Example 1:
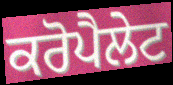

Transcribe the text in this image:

ਕਰੋਪੈਲੇਟ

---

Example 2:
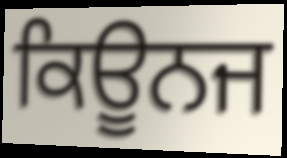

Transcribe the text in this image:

ਕਿਊਨਜ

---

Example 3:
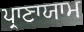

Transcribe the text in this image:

ਪ੍ਰਾਣਾਯਾਮ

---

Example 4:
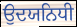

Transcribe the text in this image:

ਉਦਯਨਿਧੀ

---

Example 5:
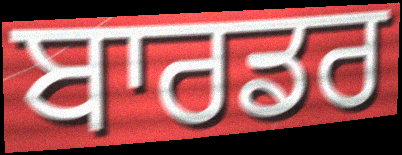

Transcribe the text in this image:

ਬਾਰਡਰ